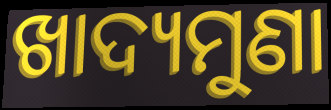
ଖାଦ୍ୟମୁଣା